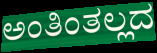
ಅಂತಿಂತಲ್ಲದ